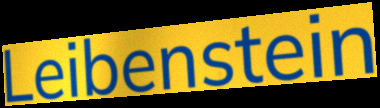
Leibenstein